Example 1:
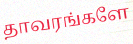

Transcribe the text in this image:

தாவரங்களே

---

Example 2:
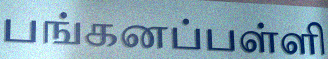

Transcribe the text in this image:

பங்கனப்பள்ளி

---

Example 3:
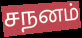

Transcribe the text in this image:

சநனம்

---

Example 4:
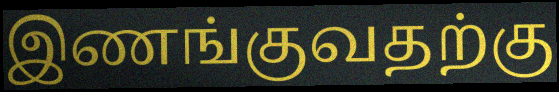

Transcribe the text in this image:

இணங்குவதற்கு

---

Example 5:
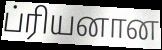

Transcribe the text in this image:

ப்ரியனான